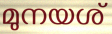
മുനയശ്